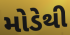
મોડેથી